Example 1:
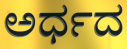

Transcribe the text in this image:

ಅರ್ಧದ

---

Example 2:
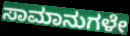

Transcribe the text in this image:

ಸಾಮಾನುಗಳೇ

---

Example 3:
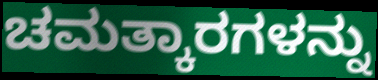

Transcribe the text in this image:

ಚಮತ್ಕಾರಗಳನ್ನು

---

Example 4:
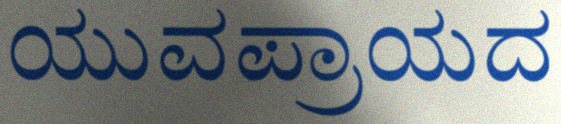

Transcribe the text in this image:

ಯುವಪ್ರಾಯದ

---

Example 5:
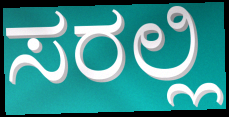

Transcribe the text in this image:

ಸರಲ್ಲಿ